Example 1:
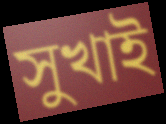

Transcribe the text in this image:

সুখাই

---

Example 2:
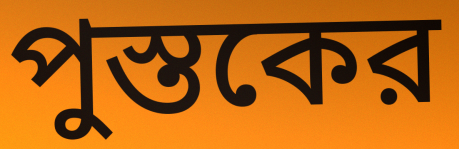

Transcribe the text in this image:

পুস্তকের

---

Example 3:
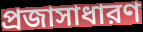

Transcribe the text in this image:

প্রজাসাধারণ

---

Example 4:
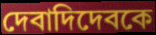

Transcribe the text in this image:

দেবাদিদেবকে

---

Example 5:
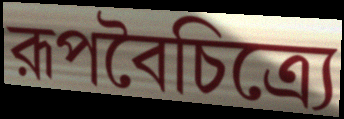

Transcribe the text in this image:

রূপবৈচিত্র্যে